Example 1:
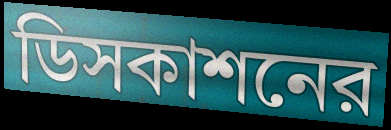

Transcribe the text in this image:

ডিসকাশনের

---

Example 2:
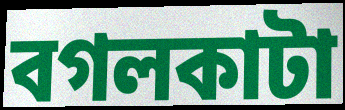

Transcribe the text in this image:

বগলকাটা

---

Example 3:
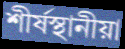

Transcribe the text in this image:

শীর্ষস্থানীয়া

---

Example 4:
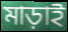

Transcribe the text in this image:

মাড়াই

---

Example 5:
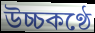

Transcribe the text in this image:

উচ্চকণ্ঠে